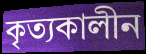
কৃত্যকালীন